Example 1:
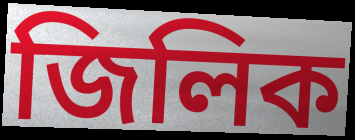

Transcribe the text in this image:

জিলিক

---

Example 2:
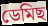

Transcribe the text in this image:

ডেমিছ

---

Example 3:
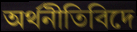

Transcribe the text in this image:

অৰ্থনীতিবিদে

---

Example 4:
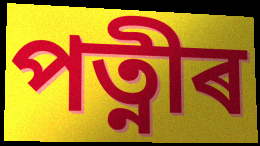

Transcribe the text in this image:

পত্নীৰ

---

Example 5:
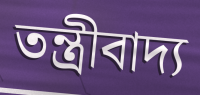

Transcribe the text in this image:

তন্ত্ৰীবাদ্য